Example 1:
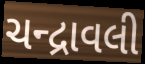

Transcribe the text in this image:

ચન્દ્રાવલી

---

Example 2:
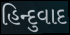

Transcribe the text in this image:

હિન્દુવાદ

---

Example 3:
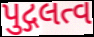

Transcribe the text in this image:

પુદ્ગલત્વ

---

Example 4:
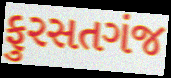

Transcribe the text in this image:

ફુરસતગંજ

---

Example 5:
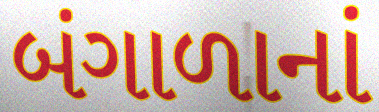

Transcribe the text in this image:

બંગાળાનાં